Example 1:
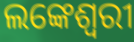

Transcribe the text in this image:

ଲଙ୍କେଶ୍ୱରୀ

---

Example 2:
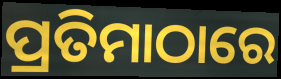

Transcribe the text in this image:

ପ୍ରତିମାଠାରେ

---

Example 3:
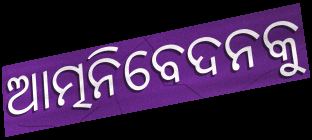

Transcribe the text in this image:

ଆତ୍ମନିବେଦନକୁ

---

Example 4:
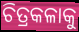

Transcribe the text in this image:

ଚିତ୍ରକଳାକୁ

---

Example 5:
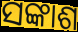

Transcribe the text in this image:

ସଙ୍କାଶ